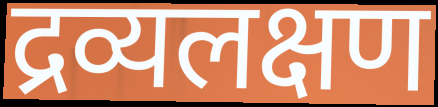
द्रव्यलक्षण